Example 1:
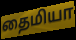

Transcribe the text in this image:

தைமியா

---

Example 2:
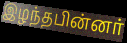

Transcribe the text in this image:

இழந்தபின்னர்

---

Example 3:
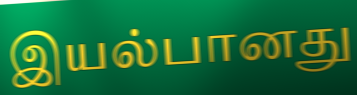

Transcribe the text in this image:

இயல்பானது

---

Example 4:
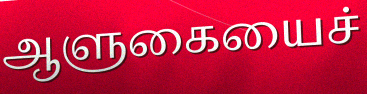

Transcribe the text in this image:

ஆளுகையைச்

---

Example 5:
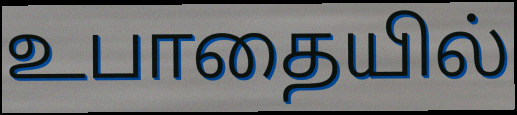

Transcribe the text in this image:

உபாதையில்